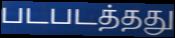
படபடத்தது